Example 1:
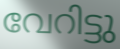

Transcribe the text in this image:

വേറിട്ടു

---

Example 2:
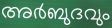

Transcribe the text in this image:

അർബുദവും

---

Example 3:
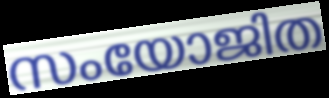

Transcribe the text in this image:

സംയോജിത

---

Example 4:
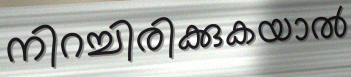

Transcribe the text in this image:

നിറച്ചിരിക്കുകയാൽ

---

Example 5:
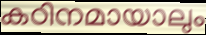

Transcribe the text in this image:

കഠിനമായാലും